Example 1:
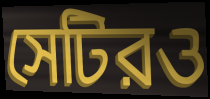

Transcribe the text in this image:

সেটিরও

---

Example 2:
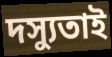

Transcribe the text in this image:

দস্যুতাই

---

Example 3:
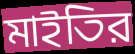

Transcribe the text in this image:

মাইতির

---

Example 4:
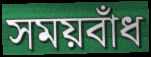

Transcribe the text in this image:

সময়বাঁধ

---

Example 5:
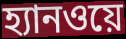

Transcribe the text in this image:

হ্যানওয়ে